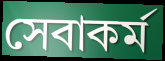
সেবাকর্ম